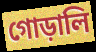
গোড়ালি